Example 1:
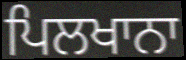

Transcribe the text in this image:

ਪਿਲਖਾਨਾ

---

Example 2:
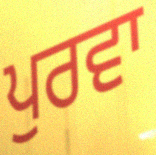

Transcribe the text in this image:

ਪੁਰਵਾ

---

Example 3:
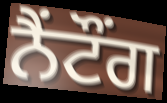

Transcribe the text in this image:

ਨੈਂਟੌਂਗ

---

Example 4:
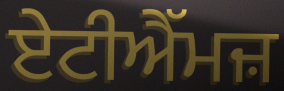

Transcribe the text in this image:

ਏਟੀਐੱਮਜ਼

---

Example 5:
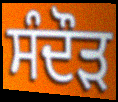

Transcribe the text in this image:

ਸੰਦੌੜ